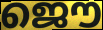
ജൌ